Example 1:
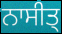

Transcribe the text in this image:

ਨਾਸੀਤ੍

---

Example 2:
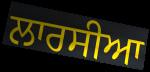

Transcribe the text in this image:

ਲਾਰਸੀਆ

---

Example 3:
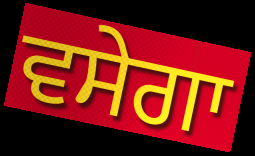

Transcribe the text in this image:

ਵਸੇਗਾ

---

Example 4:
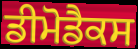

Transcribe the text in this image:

ਡੀਮੋਡੈਕਸ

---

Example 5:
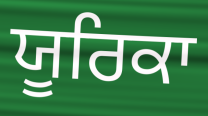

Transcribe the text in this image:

ਯੂਰਿਕਾ